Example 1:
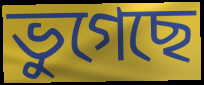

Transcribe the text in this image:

ভুগেছে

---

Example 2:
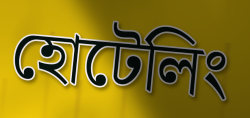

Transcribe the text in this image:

হোটেলিং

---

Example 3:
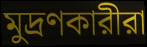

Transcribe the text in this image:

মুদ্রণকারীরা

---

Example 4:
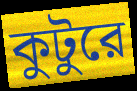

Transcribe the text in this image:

কুটুরে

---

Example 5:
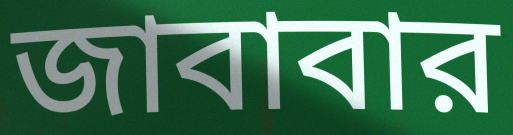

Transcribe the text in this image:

জাবাবার